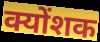
क्योंशक